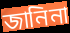
জানিনা